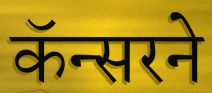
कॅन्सरने